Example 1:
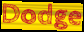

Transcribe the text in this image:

Dodge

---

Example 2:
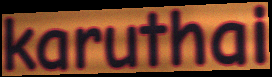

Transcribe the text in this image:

karuthai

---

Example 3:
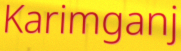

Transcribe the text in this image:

Karimganj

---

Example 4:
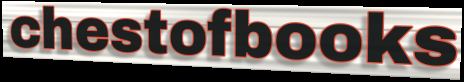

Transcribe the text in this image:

chestofbooks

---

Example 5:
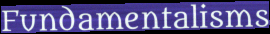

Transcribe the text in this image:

Fundamentalisms